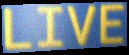
LIVE